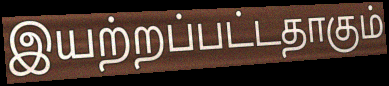
இயற்றப்பட்டதாகும்